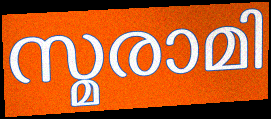
സ്മരാമി